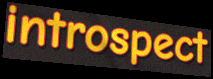
introspect